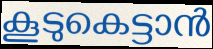
കൂടുകെട്ടാൻ